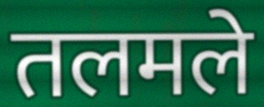
तलमले